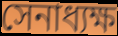
সেনাধ্যক্ষ